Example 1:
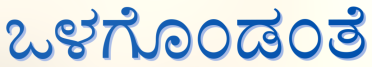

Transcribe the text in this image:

ಒಳಗೊಂಡಂತೆ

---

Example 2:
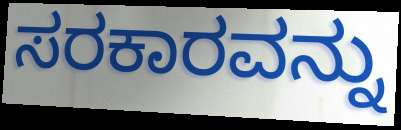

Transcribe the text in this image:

ಸರಕಾರವನ್ನು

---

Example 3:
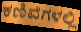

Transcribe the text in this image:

ಕಣಿವೆಗಳಲ್ಲಿ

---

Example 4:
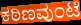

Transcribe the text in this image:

ಕಠಿಣವುಂಟೆ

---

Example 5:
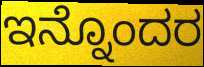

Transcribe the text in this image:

ಇನ್ನೊಂದರ